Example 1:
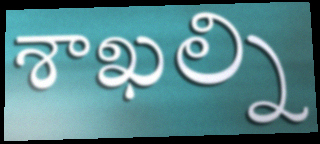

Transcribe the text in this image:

శాఖల్ని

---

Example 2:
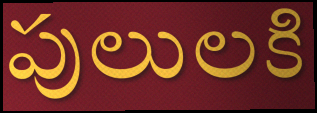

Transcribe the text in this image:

పులులకి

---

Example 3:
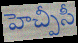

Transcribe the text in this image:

హెచ్పీసీ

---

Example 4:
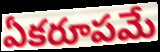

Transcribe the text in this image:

ఏకరూపమే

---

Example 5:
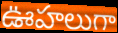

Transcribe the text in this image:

ఊహలుగా